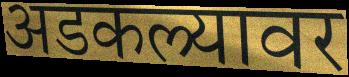
अडकल्यावर